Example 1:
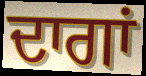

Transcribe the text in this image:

ਦਾਗਾਂ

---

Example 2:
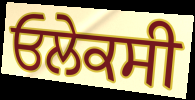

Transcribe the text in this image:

ਓਲੇਕਸੀ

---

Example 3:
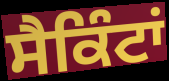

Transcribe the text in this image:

ਸੈਕਿੰਟਾਂ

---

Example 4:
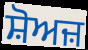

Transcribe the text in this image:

ਸ਼ੋਅਜ਼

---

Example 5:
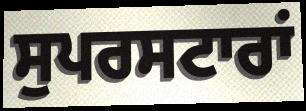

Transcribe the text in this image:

ਸੁਪਰਸਟਾਰਾਂ